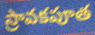
స్రావకపూత